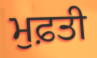
ਮੁਫ਼ਤੀ